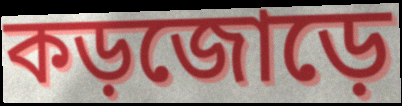
কড়জোড়ে